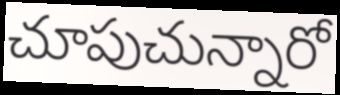
చూపుచున్నారో